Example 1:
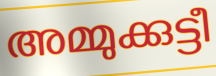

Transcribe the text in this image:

അമ്മുക്കുട്ടീ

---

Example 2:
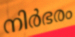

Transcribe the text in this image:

നിർഭരം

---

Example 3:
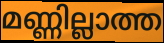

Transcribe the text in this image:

മണ്ണില്ലാത്ത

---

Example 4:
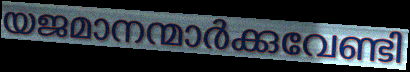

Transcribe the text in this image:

യജമാനന്മാർക്കുവേണ്ടി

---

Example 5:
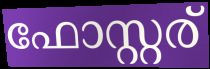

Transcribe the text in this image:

ഫോസ്റ്റര്